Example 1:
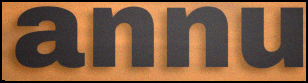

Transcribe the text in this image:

annu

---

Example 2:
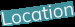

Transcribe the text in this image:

Location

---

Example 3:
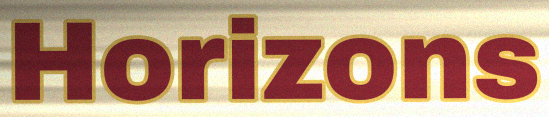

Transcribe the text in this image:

Horizons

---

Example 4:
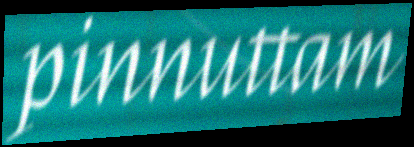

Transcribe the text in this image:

pinnuttam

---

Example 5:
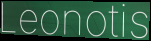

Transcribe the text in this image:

Leonotis